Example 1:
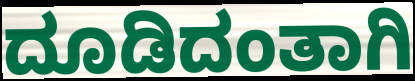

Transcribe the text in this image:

ದೂಡಿದಂತಾಗಿ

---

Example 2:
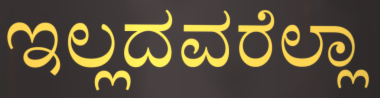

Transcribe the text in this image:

ಇಲ್ಲದವರೆಲ್ಲಾ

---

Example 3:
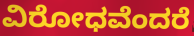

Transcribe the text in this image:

ವಿರೋಧವೆಂದರೆ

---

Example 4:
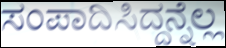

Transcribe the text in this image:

ಸಂಪಾದಿಸಿದ್ದನ್ನೆಲ್ಲ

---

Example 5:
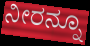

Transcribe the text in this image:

ನೀರನ್ನೂ